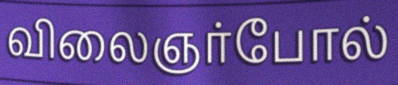
விலைஞர்போல்